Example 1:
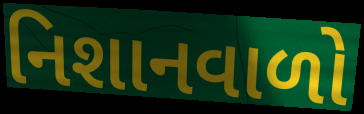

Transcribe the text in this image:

નિશાનવાળો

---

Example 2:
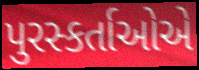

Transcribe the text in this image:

પુરસ્કર્તાઓએ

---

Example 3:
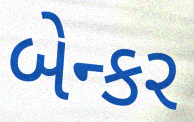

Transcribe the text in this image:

બેન્કર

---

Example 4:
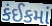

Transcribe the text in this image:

કંઈકમાં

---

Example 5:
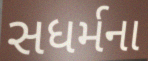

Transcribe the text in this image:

સધર્મના